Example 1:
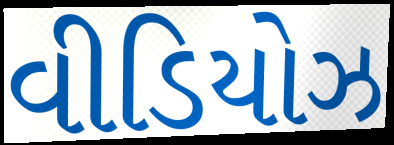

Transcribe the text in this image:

વીડિયોઝ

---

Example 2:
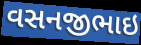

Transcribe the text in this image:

વસનજીભાઇ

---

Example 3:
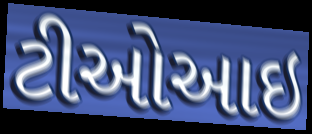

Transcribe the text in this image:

ટીઓઆઇ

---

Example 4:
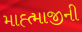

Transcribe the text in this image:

માહ્ત્માજીની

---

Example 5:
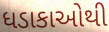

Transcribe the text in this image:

ધડાકાઓથી